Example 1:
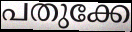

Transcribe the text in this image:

പതുക്കേ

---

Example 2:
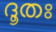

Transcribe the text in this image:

ദൂതഃ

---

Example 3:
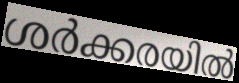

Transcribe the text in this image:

ശർക്കരയിൽ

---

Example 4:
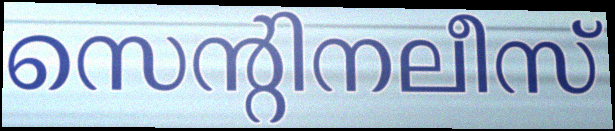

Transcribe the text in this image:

സെന്റിനലീസ്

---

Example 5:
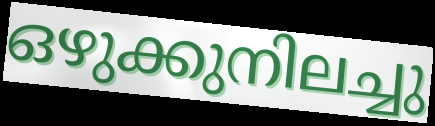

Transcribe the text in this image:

ഒഴുക്കുനിലച്ചു